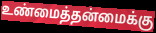
உண்மைத்தன்மைக்கு